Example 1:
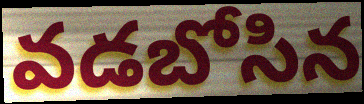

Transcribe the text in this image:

వడబోసిన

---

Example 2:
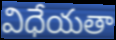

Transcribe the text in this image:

విధేయతా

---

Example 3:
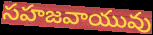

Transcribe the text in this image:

సహజవాయువు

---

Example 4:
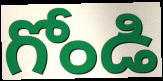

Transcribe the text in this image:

గోండి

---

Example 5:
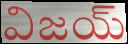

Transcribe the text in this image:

విజయ్